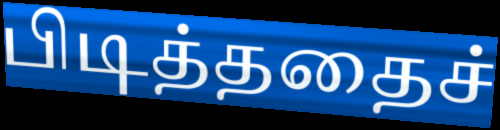
பிடித்ததைச்